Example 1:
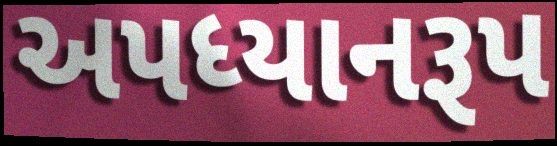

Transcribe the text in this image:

અપધ્યાનરૂપ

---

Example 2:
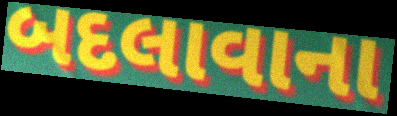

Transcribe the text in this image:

બદલાવાના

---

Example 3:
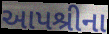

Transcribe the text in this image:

આપશ્રીના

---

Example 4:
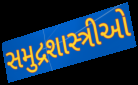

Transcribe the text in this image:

સમુદ્રશાસ્ત્રીઓ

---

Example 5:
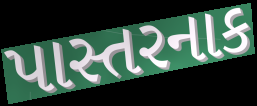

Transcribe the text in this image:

પાસ્તરનાક